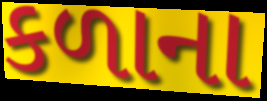
કળાના